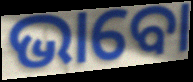
ଭାବୋ